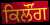
ਕਿਲੌਂਗ